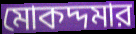
মোকদ্দমার